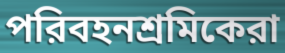
পরিবহনশ্রমিকেরা